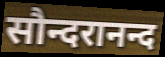
सौन्दरानन्द